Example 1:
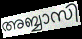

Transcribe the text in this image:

അബ്ബാസി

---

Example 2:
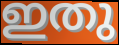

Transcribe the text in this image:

ഇതു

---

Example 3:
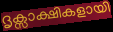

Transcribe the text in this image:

ദൃക്സാക്ഷികളായി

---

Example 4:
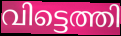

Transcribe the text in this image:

വിട്ടെത്തി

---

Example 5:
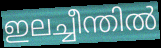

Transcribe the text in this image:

ഇലച്ചീന്തിൽ